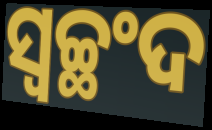
ସ୍ୱଚ୍ଛଂଦ